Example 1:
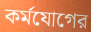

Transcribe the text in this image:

কর্মযোগের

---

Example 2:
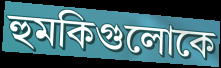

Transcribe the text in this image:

হুমকিগুলোকে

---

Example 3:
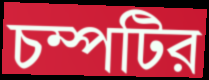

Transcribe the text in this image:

চম্পটির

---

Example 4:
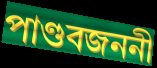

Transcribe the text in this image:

পাণ্ডবজননী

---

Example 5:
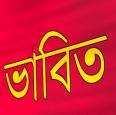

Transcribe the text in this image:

ভাবিত